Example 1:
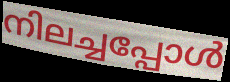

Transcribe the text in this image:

നിലച്ചപ്പോൾ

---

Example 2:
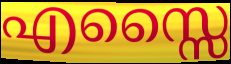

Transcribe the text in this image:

എസ്സൈ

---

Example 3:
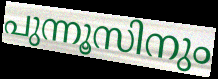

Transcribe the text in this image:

പുന്നൂസിനും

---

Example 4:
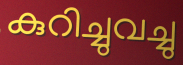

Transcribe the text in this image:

കുറിച്ചുവച്ചു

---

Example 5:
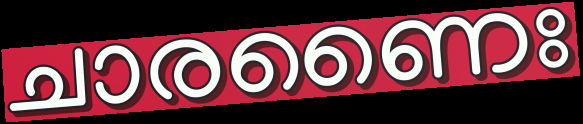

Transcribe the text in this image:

ചാരണൈഃ